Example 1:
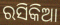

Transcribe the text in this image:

ରସିକିଆ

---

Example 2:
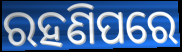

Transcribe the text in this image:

ରହଣିପରେ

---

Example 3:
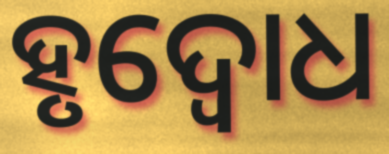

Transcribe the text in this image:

ହୃଦ୍ବୋଧ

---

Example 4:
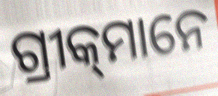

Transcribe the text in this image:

ଗ୍ରୀକ୍‌ମାନେ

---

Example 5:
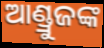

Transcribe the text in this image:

ଆଣ୍ଡ୍ରୁଜଙ୍କ